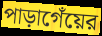
পাড়াগেঁয়ের